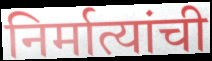
निर्मात्यांची